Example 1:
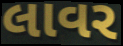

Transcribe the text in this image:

લાવર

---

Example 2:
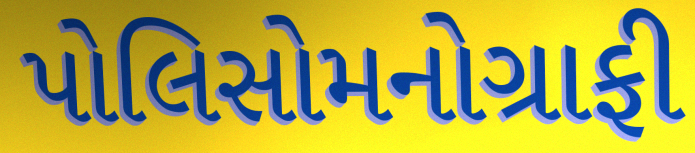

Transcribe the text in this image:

પોલિસોમનોગ્રાફી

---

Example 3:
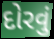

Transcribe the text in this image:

દોરવું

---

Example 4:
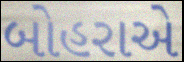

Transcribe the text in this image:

બોહરાએ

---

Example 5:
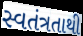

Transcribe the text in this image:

સ્વતંત્રતાથી